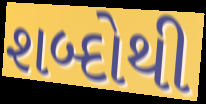
શબ્દોથી